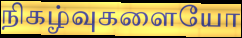
நிகழ்வுகளையோ